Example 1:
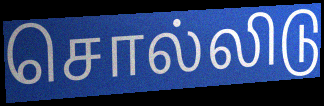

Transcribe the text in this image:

சொல்லிடு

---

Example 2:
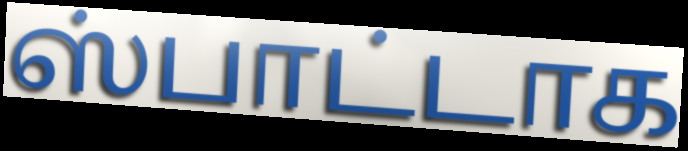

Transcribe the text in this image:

ஸ்பாட்டாக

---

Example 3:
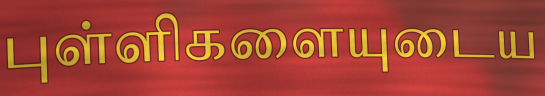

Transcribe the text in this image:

புள்ளிகளையுடைய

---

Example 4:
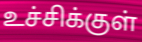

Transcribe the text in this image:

உச்சிக்குள்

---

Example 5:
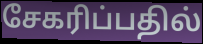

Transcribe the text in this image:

சேகரிப்பதில்